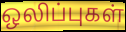
ஒலிப்புகள்